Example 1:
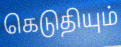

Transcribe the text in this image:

கெடுதியும்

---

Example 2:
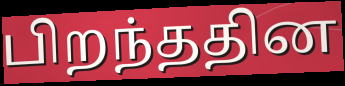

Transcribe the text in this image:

பிறந்ததின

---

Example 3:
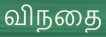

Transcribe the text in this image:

விநதை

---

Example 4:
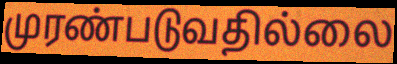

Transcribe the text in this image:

முரண்படுவதில்லை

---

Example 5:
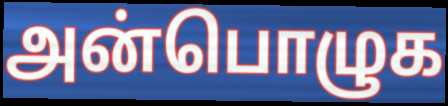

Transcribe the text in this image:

அன்பொழுக